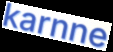
karnne